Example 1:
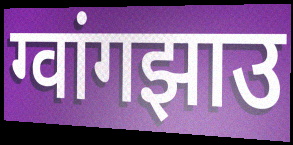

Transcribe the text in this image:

ग्वांगझाउ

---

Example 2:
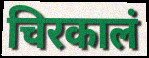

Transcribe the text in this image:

चिरकालं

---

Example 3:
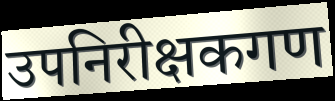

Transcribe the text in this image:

उपनिरीक्षकगण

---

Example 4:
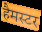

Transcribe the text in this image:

हैमस्टर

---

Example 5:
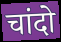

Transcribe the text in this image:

चांदो